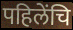
पहिलेंचि